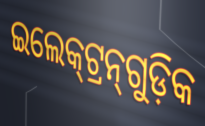
ଇଲେକ୍‍ଟ୍ରନ୍‍ଗୁଡ଼ିକ